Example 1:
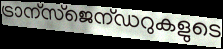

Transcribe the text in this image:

ട്രാന്സ്ജെന്ഡറുകളുടെ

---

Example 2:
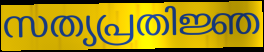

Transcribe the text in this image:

സത്യപ്രതിജ്ഞ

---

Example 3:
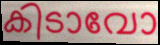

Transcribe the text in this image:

കിടാവോ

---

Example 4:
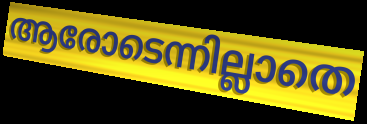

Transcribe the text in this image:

ആരോടെന്നില്ലാതെ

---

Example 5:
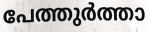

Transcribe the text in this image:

പേത്തുർത്താ